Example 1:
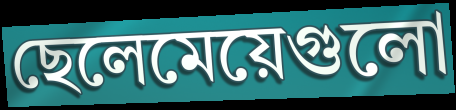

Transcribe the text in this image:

ছেলেমেয়েগুলো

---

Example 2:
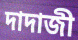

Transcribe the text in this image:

দাদাজী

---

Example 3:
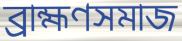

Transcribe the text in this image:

ব্রাহ্মণসমাজ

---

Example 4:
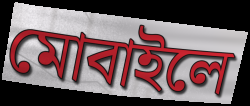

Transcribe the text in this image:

মোবাইলে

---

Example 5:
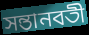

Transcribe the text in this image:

সন্তানবতী